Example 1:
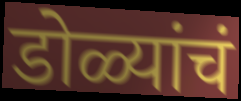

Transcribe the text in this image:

डोळ्यांचं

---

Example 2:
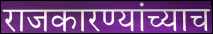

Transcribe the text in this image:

राजकारण्यांच्याच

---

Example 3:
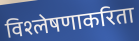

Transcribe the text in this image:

विश्लेषणाकरिता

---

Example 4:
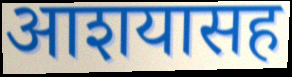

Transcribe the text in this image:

आशयासह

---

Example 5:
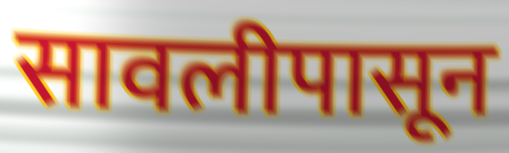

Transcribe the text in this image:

सावलीपासून